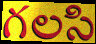
గలసి